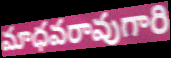
మాధవరావుగారి